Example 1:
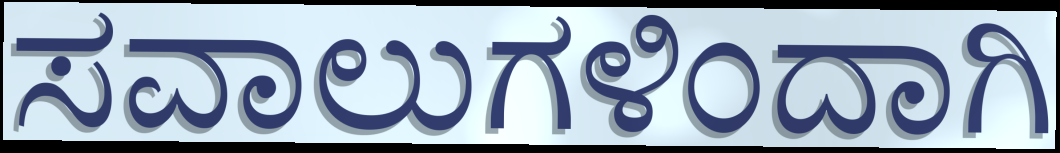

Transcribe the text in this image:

ಸವಾಲುಗಳಿಂದಾಗಿ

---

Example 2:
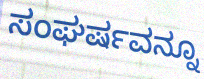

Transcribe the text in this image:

ಸಂಘರ್ಷವನ್ನೂ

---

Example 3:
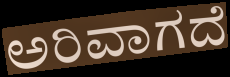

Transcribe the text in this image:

ಅರಿವಾಗದೆ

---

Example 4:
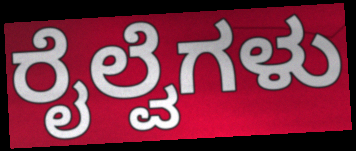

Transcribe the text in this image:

ರೈಲ್ವೆಗಳು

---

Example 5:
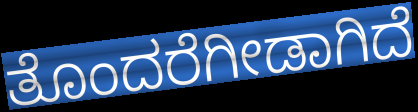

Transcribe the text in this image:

ತೊಂದರೆಗೀಡಾಗಿದೆ